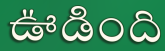
ఊడింది